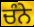
ਚੰਨੇ